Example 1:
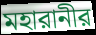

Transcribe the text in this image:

মহারানীর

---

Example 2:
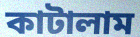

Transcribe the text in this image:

কাটালাম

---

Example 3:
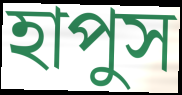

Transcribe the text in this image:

হাপুস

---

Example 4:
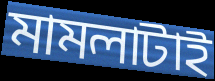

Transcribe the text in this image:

মামলাটাই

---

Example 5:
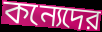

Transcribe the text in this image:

কন্যেদের